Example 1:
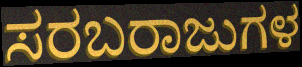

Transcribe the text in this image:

ಸರಬರಾಜುಗಳ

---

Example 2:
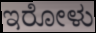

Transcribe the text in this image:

ಇರೋಳು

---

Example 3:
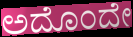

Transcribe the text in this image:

ಅದೊಂದೇ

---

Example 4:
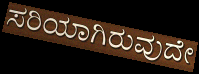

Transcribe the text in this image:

ಸರಿಯಾಗಿರುವುದೇ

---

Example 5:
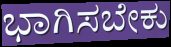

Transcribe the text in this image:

ಭಾಗಿಸಬೇಕು